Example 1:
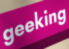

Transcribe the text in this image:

geeking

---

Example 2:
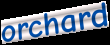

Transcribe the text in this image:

orchard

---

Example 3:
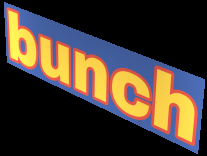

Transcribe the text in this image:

bunch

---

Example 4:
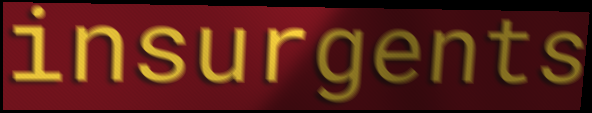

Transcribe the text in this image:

insurgents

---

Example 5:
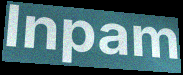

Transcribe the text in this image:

Inpam